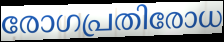
രോഗപ്രതിരോധ